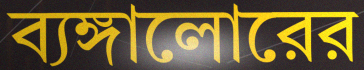
ব্যঙ্গালোরের